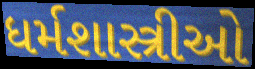
ધર્મશાસ્ત્રીઓ